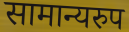
सामान्यरुप